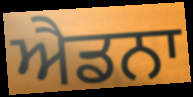
ਐਡਨਾ